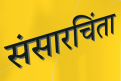
संसारचिंता